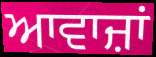
ਆਵਾਜ਼ਾਂ